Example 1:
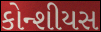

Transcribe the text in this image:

કોન્શીયસ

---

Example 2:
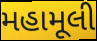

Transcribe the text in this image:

મહામૂલી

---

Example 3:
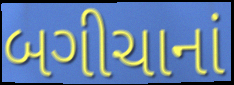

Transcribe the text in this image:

બગીચાનાં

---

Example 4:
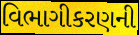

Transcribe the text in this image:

વિભાગીકરણની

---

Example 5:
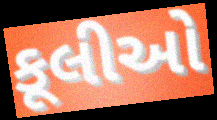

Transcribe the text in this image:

કૂલીઓ